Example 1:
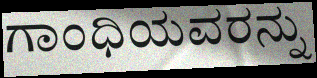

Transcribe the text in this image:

ಗಾಂಧಿಯವರನ್ನು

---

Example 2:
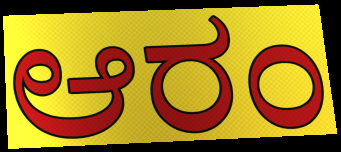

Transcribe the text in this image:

ಆರಂ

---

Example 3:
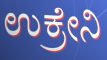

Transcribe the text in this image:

ಉಕ್ರೇನಿ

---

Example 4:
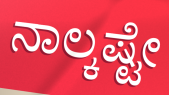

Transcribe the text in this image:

ನಾಲ್ಕಷ್ಟೇ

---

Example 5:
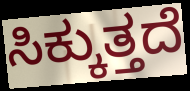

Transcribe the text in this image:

ಸಿಕ್ಕುತ್ತದೆ